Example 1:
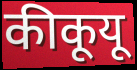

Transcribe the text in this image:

कीकूयू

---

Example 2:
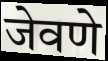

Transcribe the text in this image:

जेवणे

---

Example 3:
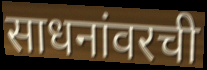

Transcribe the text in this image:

साधनांवरची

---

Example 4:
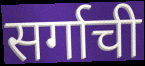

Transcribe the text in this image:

सर्गाची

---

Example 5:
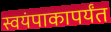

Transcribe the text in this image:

स्वयंपाकापर्यंत